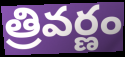
త్రివర్ణం